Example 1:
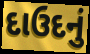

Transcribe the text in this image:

દાઉદનું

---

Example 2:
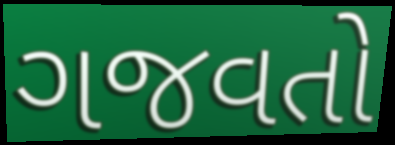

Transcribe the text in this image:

ગજવતો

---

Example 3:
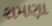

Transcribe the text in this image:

શમણા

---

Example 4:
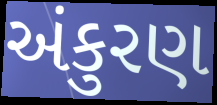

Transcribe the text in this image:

અંકુરણ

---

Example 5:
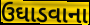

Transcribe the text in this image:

ઉઘાડવાના